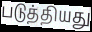
படுத்தியது